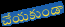
చేయకుండా